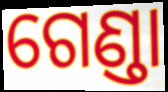
ଗେଣ୍ଡା